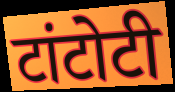
टांटोटी